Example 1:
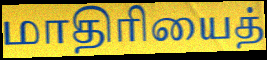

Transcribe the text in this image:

மாதிரியைத்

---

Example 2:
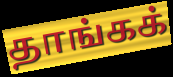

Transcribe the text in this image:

தாங்கக்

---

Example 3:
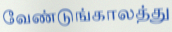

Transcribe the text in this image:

வேண்டுங்காலத்து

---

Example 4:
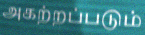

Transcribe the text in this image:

அகற்றப்படும்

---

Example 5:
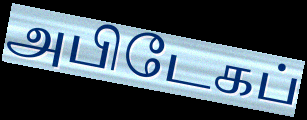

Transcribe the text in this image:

அபிடேகப்